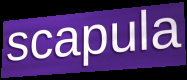
scapula